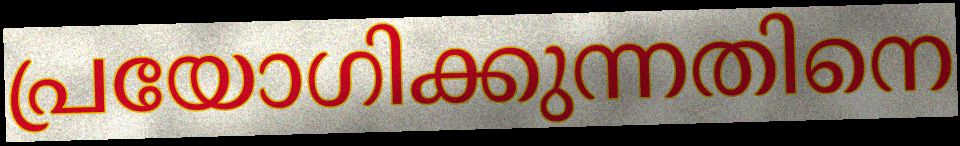
പ്രയോഗിക്കുന്നതിനെ